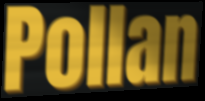
Pollan